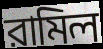
রামিল